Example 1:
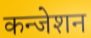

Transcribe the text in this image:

कन्जेशन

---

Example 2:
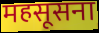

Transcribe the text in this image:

महसूसना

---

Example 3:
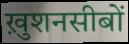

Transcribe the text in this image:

ख़ुशनसीबों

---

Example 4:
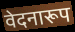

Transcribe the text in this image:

वेदनारूप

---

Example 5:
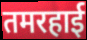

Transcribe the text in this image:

तमरहाई